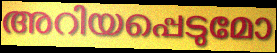
അറിയപ്പെടുമോ